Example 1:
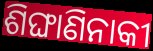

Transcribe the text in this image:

ଶିଙ୍ଘାଣିନାକୀ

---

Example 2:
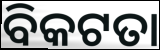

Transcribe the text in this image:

ବିକଟତା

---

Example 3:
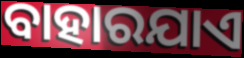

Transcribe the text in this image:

ବାହାରଯାଏ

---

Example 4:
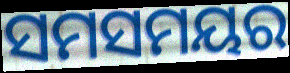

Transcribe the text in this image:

ସମସମୟର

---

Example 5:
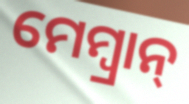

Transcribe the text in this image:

ମେମ୍ବ୍ରାନ୍